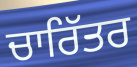
ਚਾਰਿੱਤਰ